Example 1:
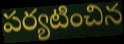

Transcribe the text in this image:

పర్యటించిన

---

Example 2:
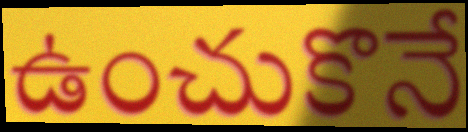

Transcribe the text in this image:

ఉంచుకొనే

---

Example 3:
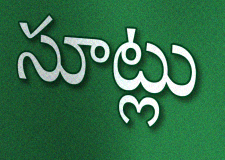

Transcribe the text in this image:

సూట్లు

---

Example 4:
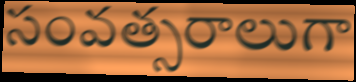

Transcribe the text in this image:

సంవత్సరాలుగా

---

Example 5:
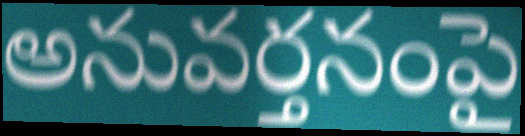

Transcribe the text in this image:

అనువర్తనంపై